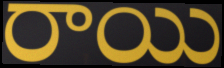
రాయి